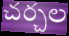
చర్చల